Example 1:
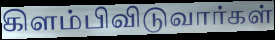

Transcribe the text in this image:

கிளம்பிவிடுவார்கள்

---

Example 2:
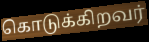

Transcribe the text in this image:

கொடுக்கிறவர்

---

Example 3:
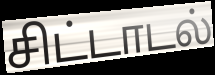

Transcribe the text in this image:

சிட்டாடல்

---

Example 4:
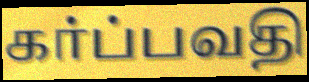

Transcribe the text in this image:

கர்ப்பவதி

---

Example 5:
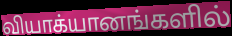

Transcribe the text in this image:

வியாக்யானங்களில்